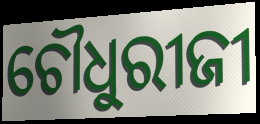
ଚୌଧୁରୀଜୀ